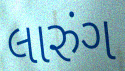
લારુંગ